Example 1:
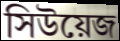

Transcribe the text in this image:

সিউয়েজ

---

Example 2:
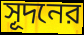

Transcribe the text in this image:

সূদনের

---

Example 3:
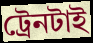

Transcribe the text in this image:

ট্রেনটাই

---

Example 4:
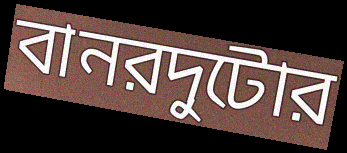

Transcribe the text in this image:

বানরদুটোর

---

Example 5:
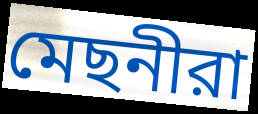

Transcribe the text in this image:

মেছনীরা